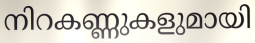
നിറകണ്ണുകളുമായി